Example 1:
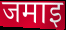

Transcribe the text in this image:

जमाइ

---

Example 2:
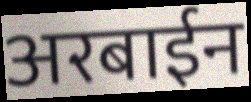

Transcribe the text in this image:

अरबाईन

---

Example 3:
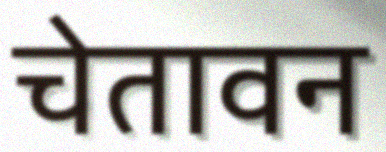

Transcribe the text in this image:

चेतावन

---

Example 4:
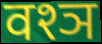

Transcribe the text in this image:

वश्ञ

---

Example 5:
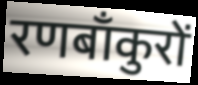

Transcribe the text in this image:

रणबाँकुरों